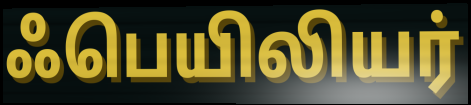
ஃபெயிலியர்